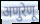
अणुरेणू